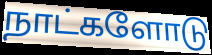
நாட்களோடு